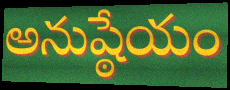
అనుష్ఠేయం